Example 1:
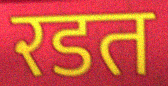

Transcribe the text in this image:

रडत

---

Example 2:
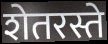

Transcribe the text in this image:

शेतरस्ते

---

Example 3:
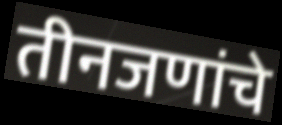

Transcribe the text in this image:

तीनजणांचे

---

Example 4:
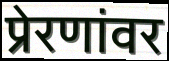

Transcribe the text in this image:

प्रेरणांवर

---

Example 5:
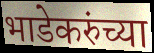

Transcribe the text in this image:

भाडेकरुंच्या